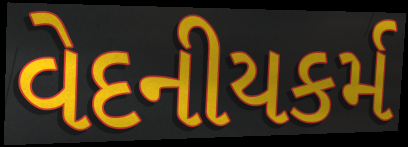
વેદનીયકર્મ